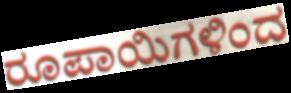
ರೂಪಾಯಿಗಳಿಂದ